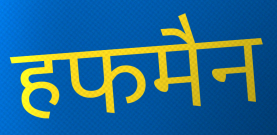
हफमैन